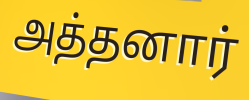
அத்தனார்